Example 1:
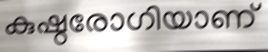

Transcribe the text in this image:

കുഷ്ഠരോഗിയാണ്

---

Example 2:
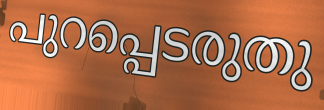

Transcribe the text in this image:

പുറപ്പെടരുതു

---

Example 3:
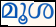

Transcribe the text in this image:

മൂശ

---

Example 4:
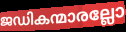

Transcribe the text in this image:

ജഡികന്മാരല്ലോ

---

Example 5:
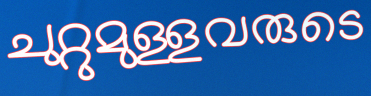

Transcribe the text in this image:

ചുറ്റുമുള്ളവരുടെ